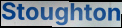
Stoughton